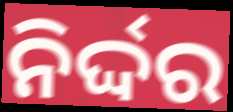
ନିର୍ଦ୍ଦର